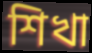
শিখা